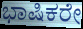
ಭಾಷಿಕರೇ